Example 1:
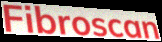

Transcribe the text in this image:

Fibroscan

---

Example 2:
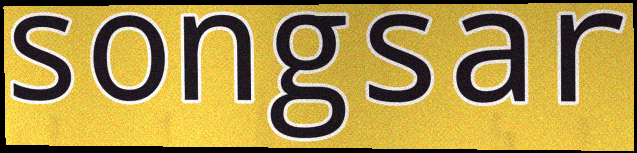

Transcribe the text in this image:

songsar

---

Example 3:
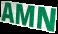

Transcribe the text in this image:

AMN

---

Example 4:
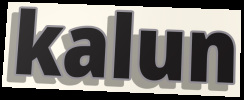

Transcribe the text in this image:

kalun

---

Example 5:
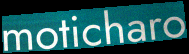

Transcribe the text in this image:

moticharo